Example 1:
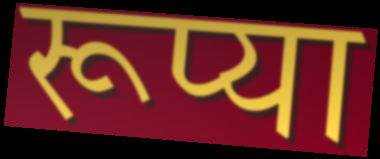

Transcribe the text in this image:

रूप्या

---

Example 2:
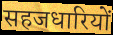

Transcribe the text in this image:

सहजधारियों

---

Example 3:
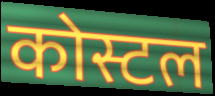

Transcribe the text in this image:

कोस्टल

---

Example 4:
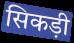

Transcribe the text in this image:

सिकड़ी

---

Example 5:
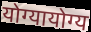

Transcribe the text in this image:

योग्यायोग्य